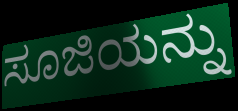
ಸೂಜಿಯನ್ನು